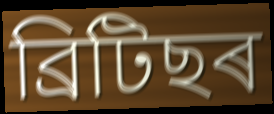
ব্ৰিটিছৰ